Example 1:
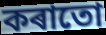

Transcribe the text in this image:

কৰাতো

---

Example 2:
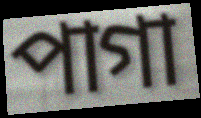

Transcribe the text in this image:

পাগা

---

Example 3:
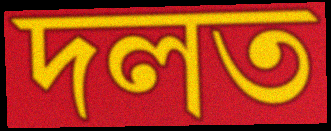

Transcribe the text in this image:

দলত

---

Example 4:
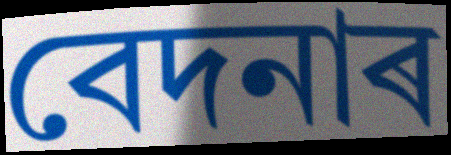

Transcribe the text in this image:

বেদনাৰ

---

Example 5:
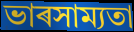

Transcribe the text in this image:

ভাৰসাম্যতা